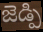
జెడ్పి